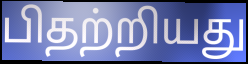
பிதற்றியது